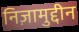
निज़ामुद्दीन